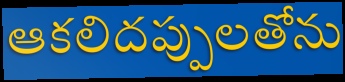
ఆకలిదప్పులతోను